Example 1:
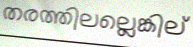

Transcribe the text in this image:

തരത്തിലല്ലെങ്കില്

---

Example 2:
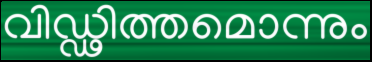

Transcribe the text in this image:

വിഡ്ഢിത്തമൊന്നും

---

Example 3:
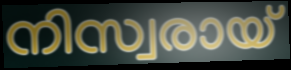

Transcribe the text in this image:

നിസ്വരായ്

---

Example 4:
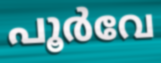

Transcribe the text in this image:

പൂർവേ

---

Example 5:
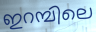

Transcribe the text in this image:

ഇറമ്പിലെ